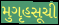
મુગૃહસૂચી